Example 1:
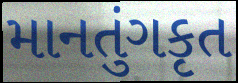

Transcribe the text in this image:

માનતુંગકૃત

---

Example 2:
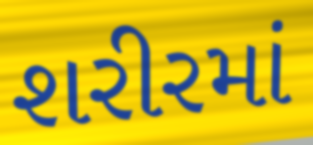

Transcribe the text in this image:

શરીરમાં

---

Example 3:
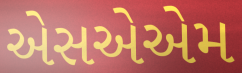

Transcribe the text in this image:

એસએએમ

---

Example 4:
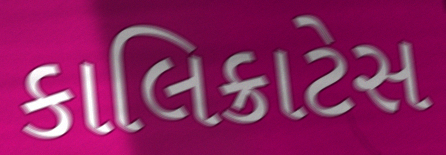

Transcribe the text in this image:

કાલિક્રાટેસ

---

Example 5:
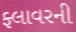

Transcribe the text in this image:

ફ્લાવરની